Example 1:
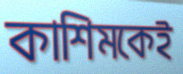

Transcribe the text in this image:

কাশিমকেই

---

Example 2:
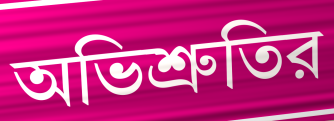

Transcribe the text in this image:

অভিশ্রুতির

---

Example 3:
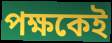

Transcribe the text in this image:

পক্ষকেই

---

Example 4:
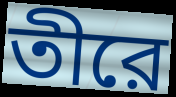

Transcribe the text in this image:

তীরে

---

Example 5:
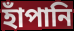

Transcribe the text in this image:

হাঁপানি